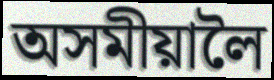
অসমীয়ালৈ